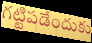
గట్టిపడేందుకు